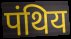
पंथिय